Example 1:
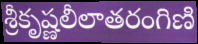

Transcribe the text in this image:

శ్రీకృష్ణలీలాతరంగిణి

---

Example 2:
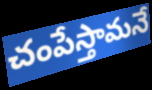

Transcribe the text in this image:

చంపేస్తామనే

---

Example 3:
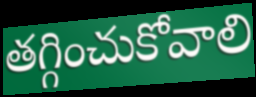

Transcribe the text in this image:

తగ్గించుకోవాలి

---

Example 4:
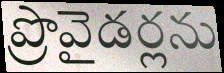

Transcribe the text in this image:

ప్రొవైడర్లను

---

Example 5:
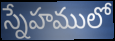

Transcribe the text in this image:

స్నేహములో